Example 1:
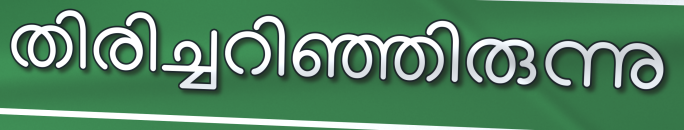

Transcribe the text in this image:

തിരിച്ചറിഞ്ഞിരുന്നു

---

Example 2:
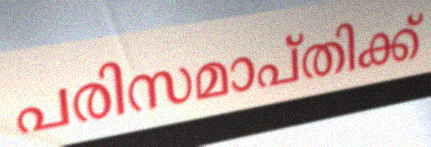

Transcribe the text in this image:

പരിസമാപ്തിക്ക്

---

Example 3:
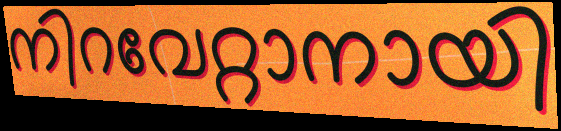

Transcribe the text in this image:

നിറവേറ്റാനായി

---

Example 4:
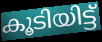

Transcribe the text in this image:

കൂടിയിട്ട്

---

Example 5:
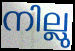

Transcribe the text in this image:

നില്ലു